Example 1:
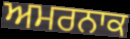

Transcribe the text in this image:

ਅਮਰਨਾਕ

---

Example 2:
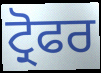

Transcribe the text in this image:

ਟ੍ਰੋਫਰ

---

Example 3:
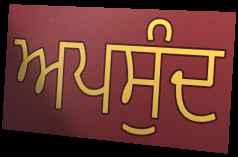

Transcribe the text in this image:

ਅਪਸੁੰਦ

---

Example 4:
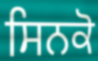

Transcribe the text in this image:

ਸਿਨਕੋ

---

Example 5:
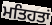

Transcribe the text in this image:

ਮਤਿਹਤਾਂ